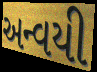
અન્વયી